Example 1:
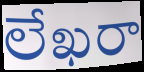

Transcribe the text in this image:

లేఖరా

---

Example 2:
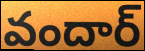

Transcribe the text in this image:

వందార్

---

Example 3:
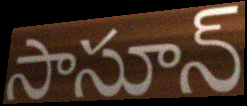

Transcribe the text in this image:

సాసూన్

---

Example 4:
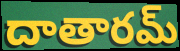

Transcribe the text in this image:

దాతారమ్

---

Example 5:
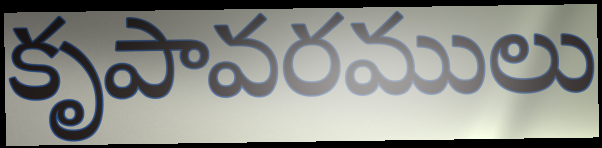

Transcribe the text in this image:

కృపావరములు